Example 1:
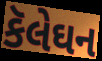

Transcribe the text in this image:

કૅલેઘન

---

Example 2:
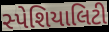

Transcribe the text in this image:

સ્પેશિયાલિટી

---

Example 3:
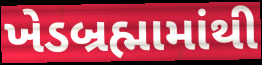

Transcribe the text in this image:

ખેડબ્રહ્મામાંથી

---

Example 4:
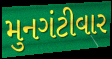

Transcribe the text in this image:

મુનગંટીવાર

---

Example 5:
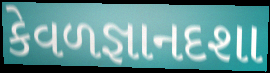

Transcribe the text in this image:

કેવળજ્ઞાનદશા